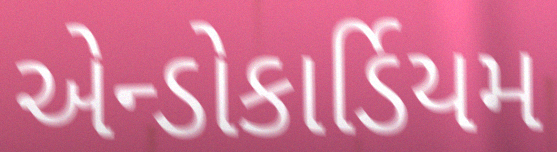
એન્ડોકાર્ડિયમ